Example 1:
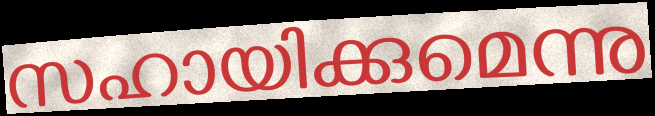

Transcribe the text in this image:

സഹായിക്കുമെന്നു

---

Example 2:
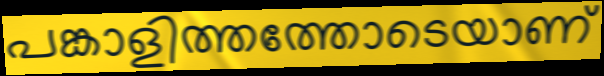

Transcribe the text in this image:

പങ്കാളിത്തത്തോടെയാണ്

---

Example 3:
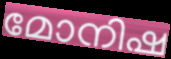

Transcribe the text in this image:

മോനിഷ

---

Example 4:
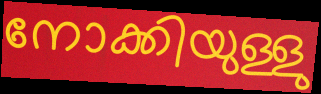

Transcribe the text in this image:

നോക്കിയുള്ളു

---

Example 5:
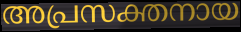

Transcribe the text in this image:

അപ്രസക്തനായ